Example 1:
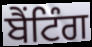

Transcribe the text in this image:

ਬੈਂਟਿੰਗ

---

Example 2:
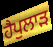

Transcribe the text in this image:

ਹੈਪੁਲਾੜ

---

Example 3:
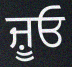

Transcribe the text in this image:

ਜ਼ੂਓ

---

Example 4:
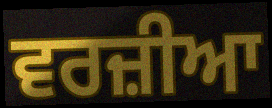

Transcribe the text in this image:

ਵਰਜ਼ੀਆ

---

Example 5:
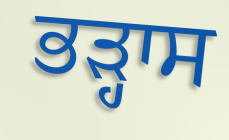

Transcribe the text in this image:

ਭੜ੍ਹਾਸ